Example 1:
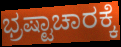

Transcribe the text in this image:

ಭ್ರಷ್ಟಾಚಾರಕ್ಕೆ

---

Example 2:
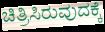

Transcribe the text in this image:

ಚಿತ್ರಿಸಿರುವುದಕ್ಕೆ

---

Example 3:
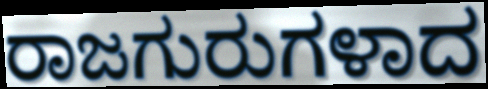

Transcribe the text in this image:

ರಾಜಗುರುಗಳಾದ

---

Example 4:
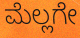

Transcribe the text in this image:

ಮೆಲ್ಲಗೇ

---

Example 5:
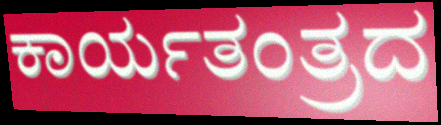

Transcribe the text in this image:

ಕಾರ್ಯತಂತ್ರದ